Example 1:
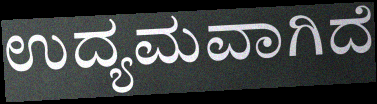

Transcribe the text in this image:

ಉದ್ಯಮವಾಗಿದೆ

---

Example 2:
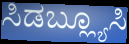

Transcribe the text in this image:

ಸಿಡಬ್ಲ್ಯೂಸಿ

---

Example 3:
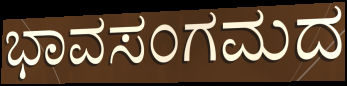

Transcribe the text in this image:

ಭಾವಸಂಗಮದ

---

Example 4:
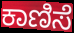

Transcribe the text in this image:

ಕಾಣಿಸೆ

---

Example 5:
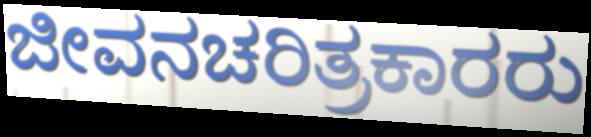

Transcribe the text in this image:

ಜೀವನಚರಿತ್ರಕಾರರು